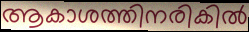
ആകാശത്തിനരികിൽ